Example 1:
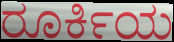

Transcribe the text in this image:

ರೂರ್ಕಿಯ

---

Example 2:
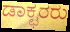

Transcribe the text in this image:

ಡಾಕ್ಟರರು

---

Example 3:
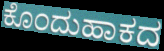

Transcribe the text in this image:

ಕೊಂದುಹಾಕದ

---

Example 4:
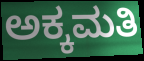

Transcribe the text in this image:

ಅಕ್ಕಮತಿ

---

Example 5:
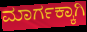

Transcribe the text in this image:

ಮಾರ್ಗಕ್ಕಾಗಿ